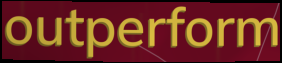
outperform